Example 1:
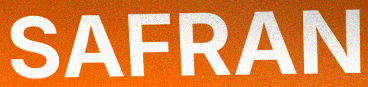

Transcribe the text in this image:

SAFRAN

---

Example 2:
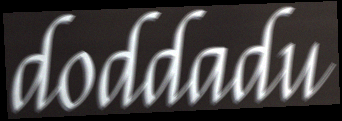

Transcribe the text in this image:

doddadu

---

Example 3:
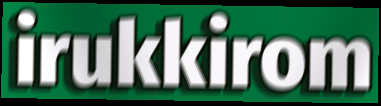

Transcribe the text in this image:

irukkirom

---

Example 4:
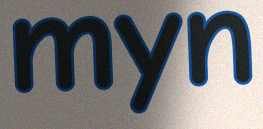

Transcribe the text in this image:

myn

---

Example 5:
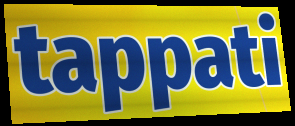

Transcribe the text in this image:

tappati